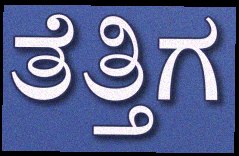
ತೆತ್ತಿಗ